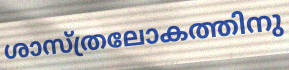
ശാസ്ത്രലോകത്തിനു